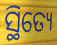
ସ୍ଥିତ୍ୟେ